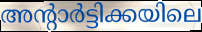
അന്റാർട്ടിക്കയിലെ